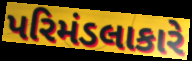
પરિમંડલાકારે